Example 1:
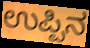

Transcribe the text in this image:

ಉಪ್ಪಿನ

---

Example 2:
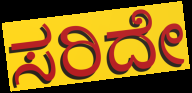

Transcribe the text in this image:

ಸರಿದೇ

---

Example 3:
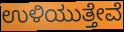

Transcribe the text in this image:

ಉಳಿಯುತ್ತೇವೆ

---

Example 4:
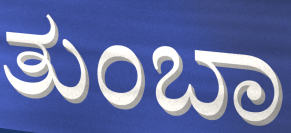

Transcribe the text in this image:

ತುಂಬಾ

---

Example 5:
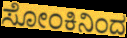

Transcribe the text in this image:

ಸೋಂಕಿನಿಂದ